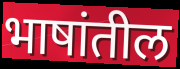
भाषांतील